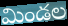
మిండల